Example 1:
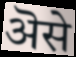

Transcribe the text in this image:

ऄसे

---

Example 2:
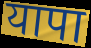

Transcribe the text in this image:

यापा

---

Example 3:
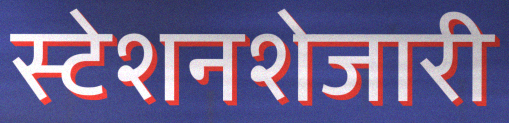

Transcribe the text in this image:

स्टेशनशेजारी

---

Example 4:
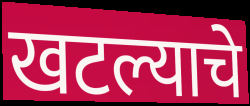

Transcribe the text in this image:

खटल्याचे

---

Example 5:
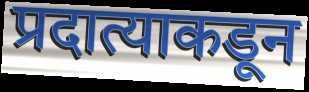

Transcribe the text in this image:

प्रदात्याकडून